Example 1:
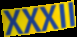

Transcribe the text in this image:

XXXII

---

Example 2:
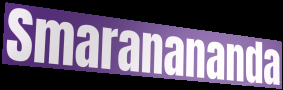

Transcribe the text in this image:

Smaranananda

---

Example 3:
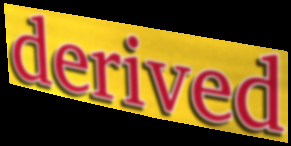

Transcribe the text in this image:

derived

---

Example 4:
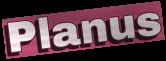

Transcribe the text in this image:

Planus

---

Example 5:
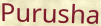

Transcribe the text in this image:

Purusha